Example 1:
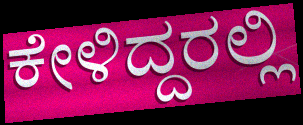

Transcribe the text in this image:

ಕೇಳಿದ್ದರಲ್ಲಿ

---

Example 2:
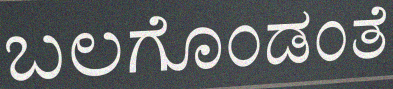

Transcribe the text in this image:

ಬಲಗೊಂಡಂತೆ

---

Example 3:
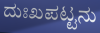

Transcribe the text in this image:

ದುಃಖಪಟ್ಟನು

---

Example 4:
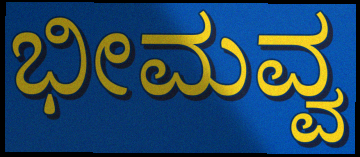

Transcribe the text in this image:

ಭೀಮವ್ವ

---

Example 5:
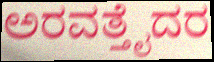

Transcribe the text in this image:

ಅರವತ್ತೈದರ